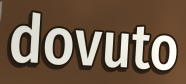
dovuto